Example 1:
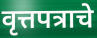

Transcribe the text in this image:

वृत्तपत्राचे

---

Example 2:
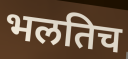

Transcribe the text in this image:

भलतिच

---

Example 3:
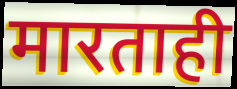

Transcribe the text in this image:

मारताही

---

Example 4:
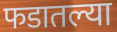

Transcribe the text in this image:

फडातल्या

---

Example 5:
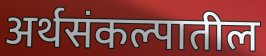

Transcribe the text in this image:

अर्थसंकल्पातील